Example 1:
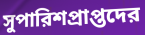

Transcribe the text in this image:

সুপারিশপ্রাপ্তদের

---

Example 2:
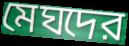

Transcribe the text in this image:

মেঘদের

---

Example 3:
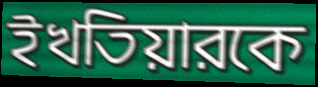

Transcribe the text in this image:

ইখতিয়ারকে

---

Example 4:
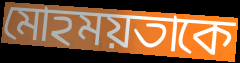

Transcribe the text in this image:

মোহময়তাকে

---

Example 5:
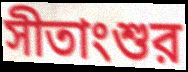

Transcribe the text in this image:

সীতাংশুর